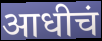
आधीचं